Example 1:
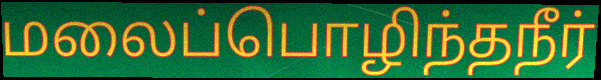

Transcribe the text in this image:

மலைப்பொழிந்தநீர்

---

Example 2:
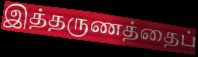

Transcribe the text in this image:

இத்தருணத்தைப்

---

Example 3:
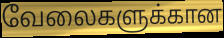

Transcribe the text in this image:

வேலைகளுக்கான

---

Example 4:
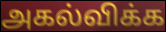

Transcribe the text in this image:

அகல்விக்க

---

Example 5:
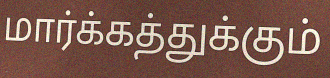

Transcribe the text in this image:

மார்க்கத்துக்கும்